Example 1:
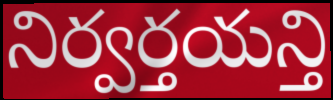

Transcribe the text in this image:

నిర్వర్తయన్తి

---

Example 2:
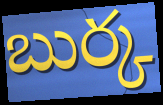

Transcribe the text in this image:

బుర్క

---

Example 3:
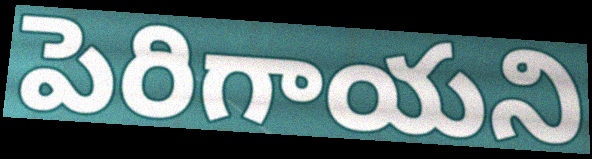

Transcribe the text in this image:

పెరిగాయని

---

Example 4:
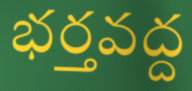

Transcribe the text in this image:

భర్తవద్ద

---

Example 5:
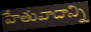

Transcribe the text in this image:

హేతువాదాన్ని